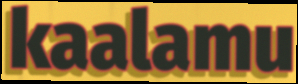
kaalamu